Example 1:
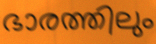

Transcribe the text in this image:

ഭാരത്തിലും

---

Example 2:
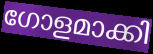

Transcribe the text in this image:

ഗോളമാക്കി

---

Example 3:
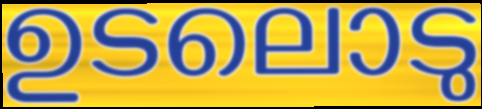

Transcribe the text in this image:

ഉടലൊടു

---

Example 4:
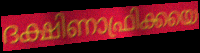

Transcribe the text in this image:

ദക്ഷിണാഫ്രിക്കയെ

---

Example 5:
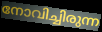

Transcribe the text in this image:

നോവിച്ചിരുന്ന